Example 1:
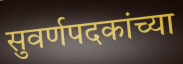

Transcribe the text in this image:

सुवर्णपदकांच्या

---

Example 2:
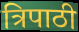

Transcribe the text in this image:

त्रिपाठी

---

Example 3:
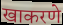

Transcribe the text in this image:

खाकरणे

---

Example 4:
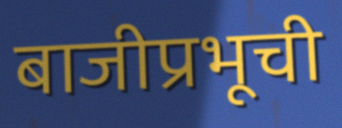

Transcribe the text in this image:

बाजीप्रभूची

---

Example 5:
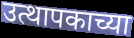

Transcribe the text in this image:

उत्थापकाच्या